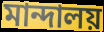
মান্দালয়